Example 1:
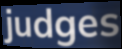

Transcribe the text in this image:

judges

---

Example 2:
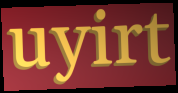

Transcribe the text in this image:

uyirt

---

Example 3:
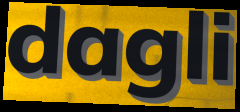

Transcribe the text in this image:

dagli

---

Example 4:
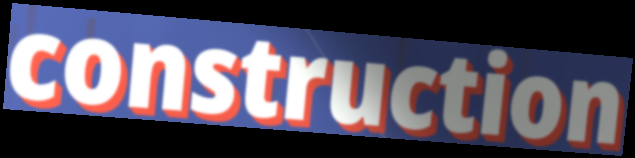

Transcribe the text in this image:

construction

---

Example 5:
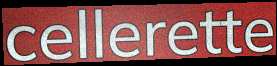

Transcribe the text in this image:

cellerette